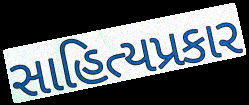
સાહિત્યપ્રકાર